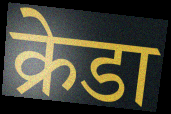
क्रेडा